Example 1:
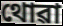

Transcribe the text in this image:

থোৱা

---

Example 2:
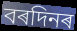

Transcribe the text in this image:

বৰদিনৰ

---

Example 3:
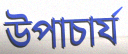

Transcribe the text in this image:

উপাচাৰ্য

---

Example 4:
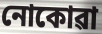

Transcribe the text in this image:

নোকোৱা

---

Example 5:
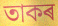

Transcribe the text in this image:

তাকৰ